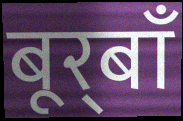
बूर्‌बाँ